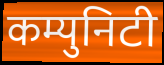
कम्युनिटी